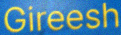
Gireesh